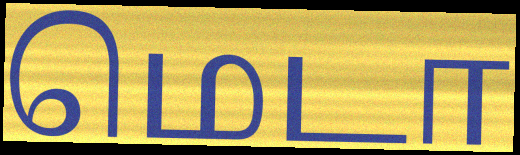
மெடா